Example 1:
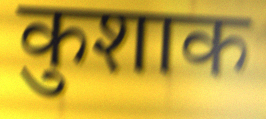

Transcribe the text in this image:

कुशाक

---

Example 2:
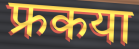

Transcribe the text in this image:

फ्रकया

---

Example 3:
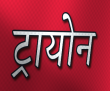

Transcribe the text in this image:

ट्रायोन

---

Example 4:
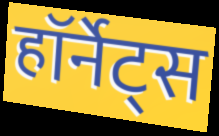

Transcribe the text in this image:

हॉर्नेट्स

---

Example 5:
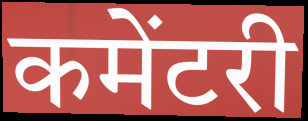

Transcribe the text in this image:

कमेंटरी